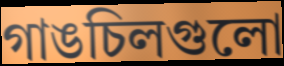
গাঙচিলগুলো